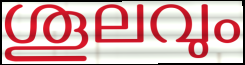
ശൂലവും